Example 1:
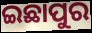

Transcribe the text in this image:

ଇଛାପୁର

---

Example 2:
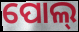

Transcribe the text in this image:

ପୋଲ୍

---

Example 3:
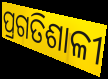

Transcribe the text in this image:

ପ୍ରଗତିଶାଳୀ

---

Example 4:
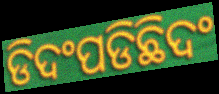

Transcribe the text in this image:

ଡିଦଂପଡିଛିଦଂ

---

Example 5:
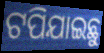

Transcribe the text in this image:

ଟପିଯାଇଛୁ